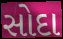
સોદા